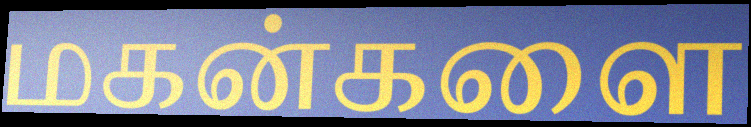
மகன்களை